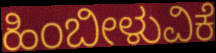
ಹಿಂಬೀಳುವಿಕೆ